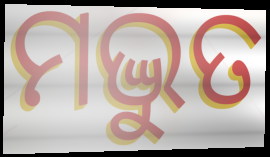
ମଦ୍ଭୁତ